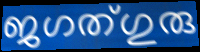
ജഗത്ഗുരു